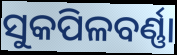
ସୁକପିଳବର୍ଣ୍ଣା